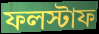
ফলস্টাফ